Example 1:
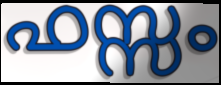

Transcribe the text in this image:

ഫസ്സം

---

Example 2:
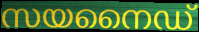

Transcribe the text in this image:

സയനൈഡ്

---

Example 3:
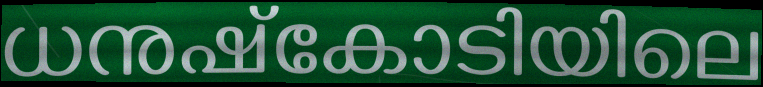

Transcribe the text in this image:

ധനുഷ്‌കോടിയിലെ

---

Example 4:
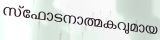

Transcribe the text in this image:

സ്ഫോടനാത്മകവുമായ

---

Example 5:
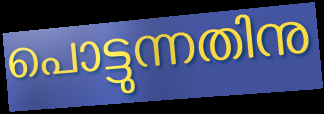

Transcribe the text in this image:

പൊട്ടുന്നതിനു